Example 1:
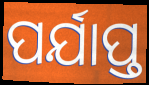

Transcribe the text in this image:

ପର୍ଯାପ୍ତ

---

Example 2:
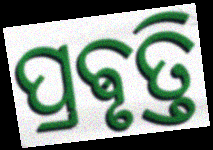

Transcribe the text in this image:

ପ୍ରଵୃତ୍ତି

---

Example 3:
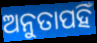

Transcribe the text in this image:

ଅନୁତାପହିଁ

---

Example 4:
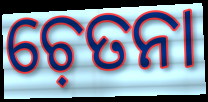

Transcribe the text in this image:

ଚ଼େତନା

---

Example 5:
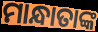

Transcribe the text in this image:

ମାନ୍ଧାତାଙ୍କ